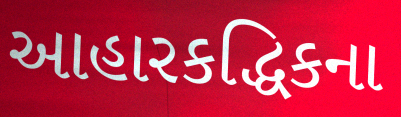
આહારકદ્ધિકના